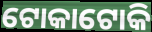
ଟୋକାଟୋକି